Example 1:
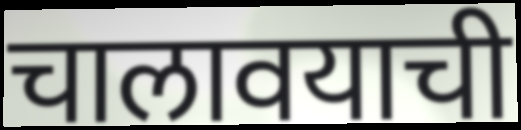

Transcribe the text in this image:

चालावयाची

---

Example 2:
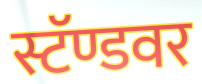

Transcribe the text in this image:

स्टॅण्डवर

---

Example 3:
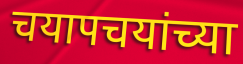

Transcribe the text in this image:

चयापचयांच्या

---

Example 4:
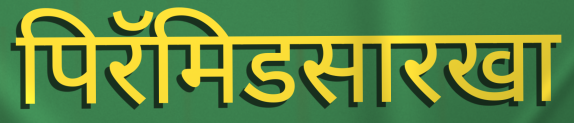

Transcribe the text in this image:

पिरॅमिडसारखा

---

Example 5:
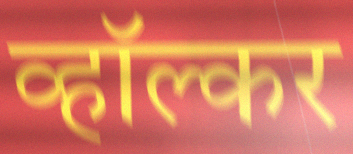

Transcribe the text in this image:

व्हॉल्कर